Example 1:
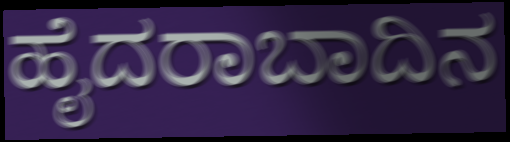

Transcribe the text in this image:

ಹೈದರಾಬಾದಿನ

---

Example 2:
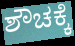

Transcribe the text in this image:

ಶೌಚಕ್ಕೆ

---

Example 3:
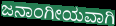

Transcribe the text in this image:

ಜನಾಂಗೀಯವಾಗಿ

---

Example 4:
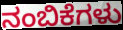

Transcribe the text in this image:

ನಂಬಿಕೆಗಳು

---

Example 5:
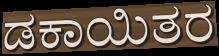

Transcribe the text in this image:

ಡಕಾಯಿತರ